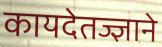
कायदेतज्ज्ञाने